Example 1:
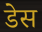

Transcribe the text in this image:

डेस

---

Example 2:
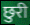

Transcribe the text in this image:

छुरी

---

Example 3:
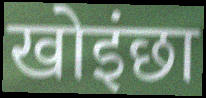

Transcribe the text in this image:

खोइंछा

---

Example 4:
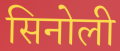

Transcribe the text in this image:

सिनोली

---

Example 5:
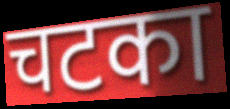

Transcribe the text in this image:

चटका